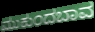
ಮುಕುಂದಬಾವ